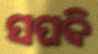
ସପଦି